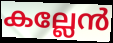
കല്ലേൻ